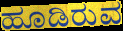
ಹೂಡಿರುವ